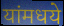
यांमधये